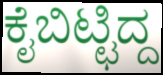
ಕೈಬಿಟ್ಟಿದ್ದ